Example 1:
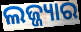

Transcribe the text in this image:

ଲଜ୍ଜ୍ୟାର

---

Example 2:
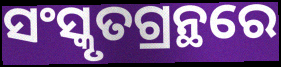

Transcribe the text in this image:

ସଂସ୍କୃତଗ୍ରନ୍ଥରେ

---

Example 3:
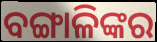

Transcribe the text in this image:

ବଙ୍ଗାଳିଙ୍କର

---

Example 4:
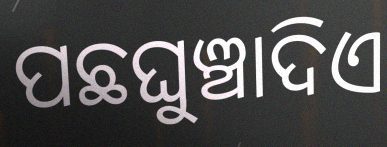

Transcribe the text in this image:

ପଛଘୁଞ୍ଚାଦିଏ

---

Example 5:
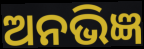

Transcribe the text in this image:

ଅନଭିଜ୍ଞ